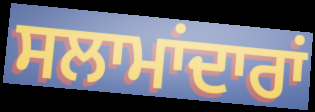
ਸਲਾਮਾਂਦਾਰਾਂ